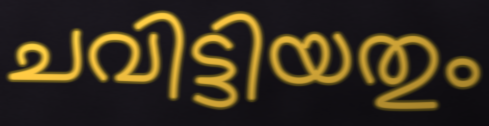
ചവിട്ടിയതും